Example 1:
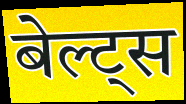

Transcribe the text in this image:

बेल्ट्स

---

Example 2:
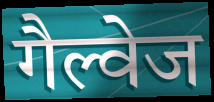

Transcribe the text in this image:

गैल्वेज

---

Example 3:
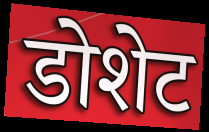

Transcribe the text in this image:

डोशेट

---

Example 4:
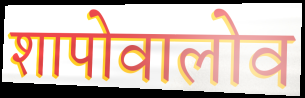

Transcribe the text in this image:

शापोवालोव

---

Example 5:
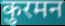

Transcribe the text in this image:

कुरमन